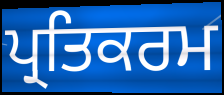
ਪ੍ਰਤਿਕਰਮ